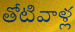
తోటివాళ్ల